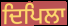
ਦਿਪਿਲਾ